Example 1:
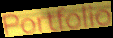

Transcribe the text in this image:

Portfolio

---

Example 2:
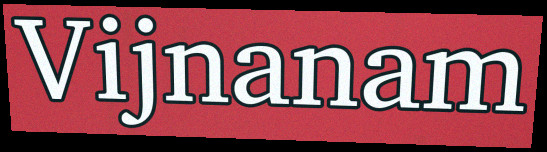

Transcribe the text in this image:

Vijnanam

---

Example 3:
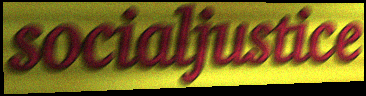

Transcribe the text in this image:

socialjustice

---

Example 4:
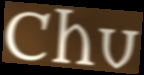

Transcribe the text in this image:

Chu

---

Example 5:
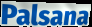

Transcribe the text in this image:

Palsana